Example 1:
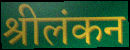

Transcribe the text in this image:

श्रीलंकन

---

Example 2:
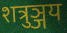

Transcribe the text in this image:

शत्रुञ्जय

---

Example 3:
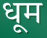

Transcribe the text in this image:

धूम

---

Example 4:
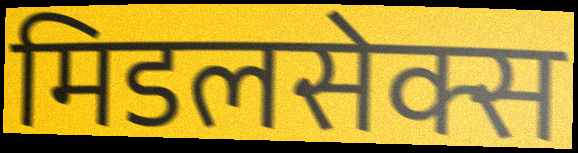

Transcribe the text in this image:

मिडलसेक्स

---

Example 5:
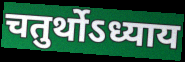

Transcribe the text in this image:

चतुर्थोऽध्याय